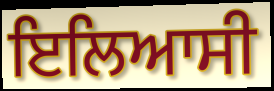
ਇਲਿਆਸੀ